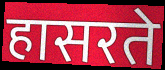
हासरते